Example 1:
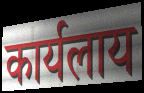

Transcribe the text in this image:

कार्यलाय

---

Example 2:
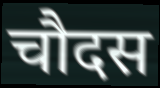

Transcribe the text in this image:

चौदस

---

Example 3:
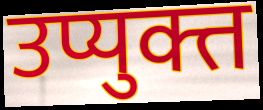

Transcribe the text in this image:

उप्युक्त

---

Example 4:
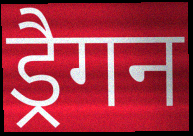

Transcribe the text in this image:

ड्रैगन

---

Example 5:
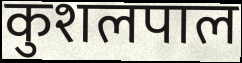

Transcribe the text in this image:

कुशलपाल